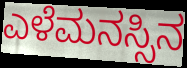
ಎಳೆಮನಸ್ಸಿನ